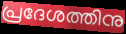
പ്രദേശത്തിനു